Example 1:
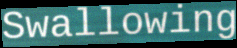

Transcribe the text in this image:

Swallowing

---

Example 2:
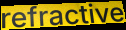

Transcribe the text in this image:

refractive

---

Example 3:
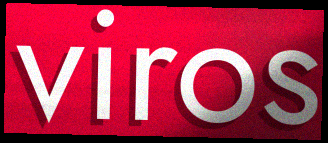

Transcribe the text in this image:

viros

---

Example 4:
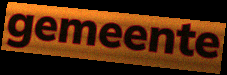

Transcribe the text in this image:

gemeente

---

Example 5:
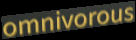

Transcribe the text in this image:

omnivorous